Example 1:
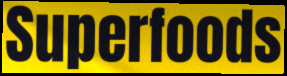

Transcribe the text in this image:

Superfoods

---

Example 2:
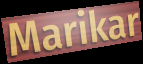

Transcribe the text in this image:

Marikar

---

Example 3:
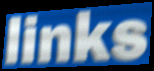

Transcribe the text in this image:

links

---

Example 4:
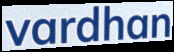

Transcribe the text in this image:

vardhan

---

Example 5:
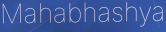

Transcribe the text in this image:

Mahabhashya